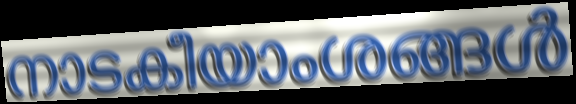
നാടകീയാംശങ്ങൾ